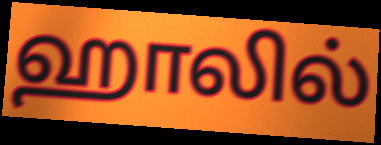
ஹாலில்